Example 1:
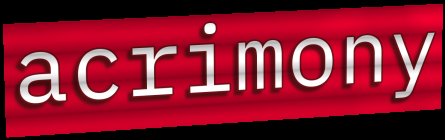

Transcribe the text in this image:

acrimony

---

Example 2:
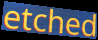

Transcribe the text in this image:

etched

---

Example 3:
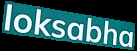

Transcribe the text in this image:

loksabha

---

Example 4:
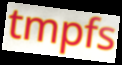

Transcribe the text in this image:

tmpfs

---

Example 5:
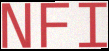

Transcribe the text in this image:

NFI